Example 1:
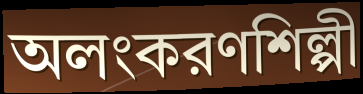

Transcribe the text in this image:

অলংকরণশিল্পী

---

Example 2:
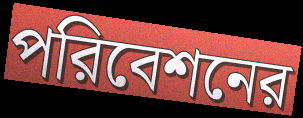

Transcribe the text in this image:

পরিবেশনের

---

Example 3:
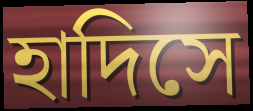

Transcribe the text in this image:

হাদিসে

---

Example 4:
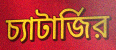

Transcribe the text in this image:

চ্যাটার্জির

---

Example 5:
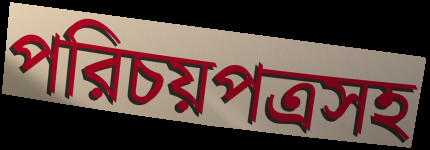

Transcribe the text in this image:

পরিচয়পত্রসহ